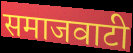
समाजवाटी